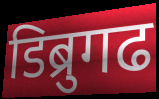
डिब्रुगढ